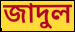
জাদুল